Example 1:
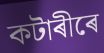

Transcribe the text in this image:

কটাৰীৰে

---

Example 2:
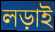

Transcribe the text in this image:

লড়াই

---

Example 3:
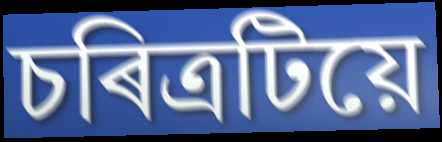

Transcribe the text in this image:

চৰিত্ৰটিয়ে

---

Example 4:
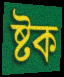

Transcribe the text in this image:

ষ্টক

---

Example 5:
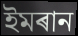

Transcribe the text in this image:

ইমৰান